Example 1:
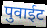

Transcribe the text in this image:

पुवाईट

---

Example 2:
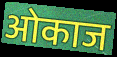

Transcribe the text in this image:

ओकाज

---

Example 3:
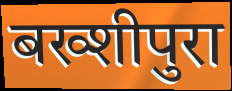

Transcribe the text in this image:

बख्शीपुरा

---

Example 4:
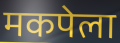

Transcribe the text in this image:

मकपेला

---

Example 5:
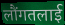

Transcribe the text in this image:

लौंगतलाई